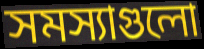
সমস্যাগুলো